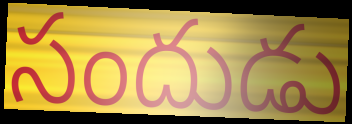
సందుడు